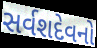
સર્વશદેવનો